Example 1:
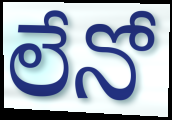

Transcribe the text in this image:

లేనో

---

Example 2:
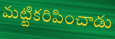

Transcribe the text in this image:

మట్టికరిపించాడు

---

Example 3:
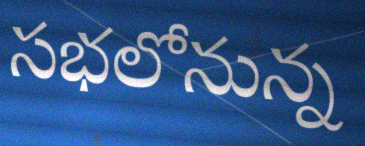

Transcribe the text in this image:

సభలోనున్న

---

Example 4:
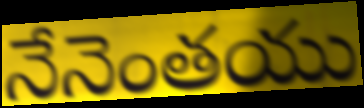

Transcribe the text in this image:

నేనెంతయు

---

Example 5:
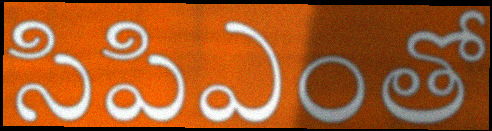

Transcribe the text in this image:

సిపిఎంతో